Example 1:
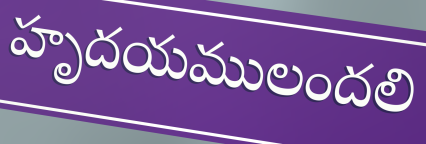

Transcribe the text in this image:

హృదయములందలి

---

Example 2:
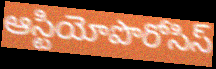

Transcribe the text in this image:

ఆస్టియోపొరోసిస్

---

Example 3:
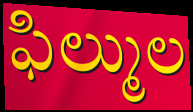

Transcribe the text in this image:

ఫిల్ముల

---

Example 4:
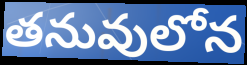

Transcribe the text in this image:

తనువులోన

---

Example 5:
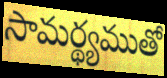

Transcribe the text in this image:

సామర్థ్యముతో